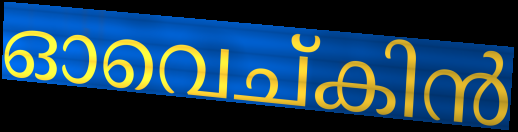
ഓവെച്കിൻ